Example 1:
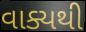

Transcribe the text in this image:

વાક્યથી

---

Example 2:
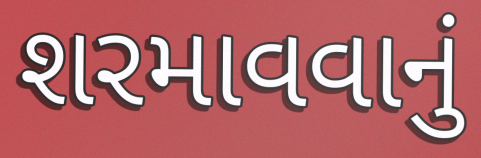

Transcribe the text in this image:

શરમાવવાનું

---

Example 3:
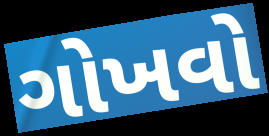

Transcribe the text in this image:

ગોખવો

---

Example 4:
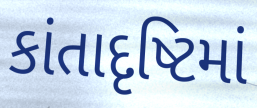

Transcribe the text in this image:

કાંતાદૃષ્ટિમાં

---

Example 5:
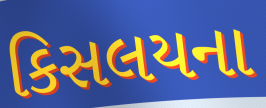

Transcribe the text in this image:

કિસલયના